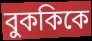
বুককিকে